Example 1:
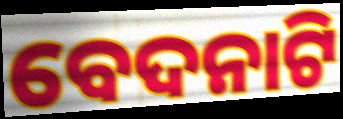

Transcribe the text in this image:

ବେଦନାଟି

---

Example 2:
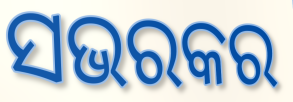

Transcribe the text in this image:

ସଭରକର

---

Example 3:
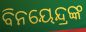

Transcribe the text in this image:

ବିନୟେନ୍ଦ୍ରଙ୍କ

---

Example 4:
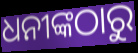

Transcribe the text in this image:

ଧନୀଙ୍କଠାରୁ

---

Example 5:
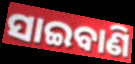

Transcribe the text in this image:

ସାଇବାଣି